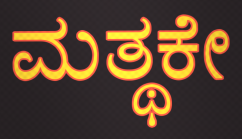
ಮತ್ಥಕೇ